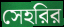
সেহরির